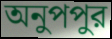
অনুপপুর